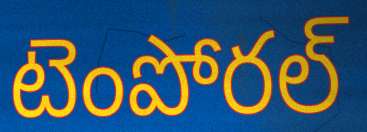
టెంపోరల్